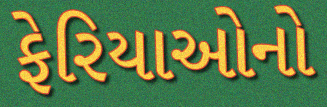
ફેરિયાઓનો